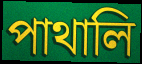
পাথালি